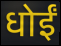
धोईं